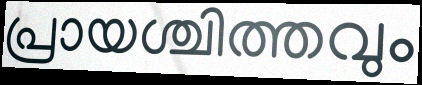
പ്രായശ്ചിത്തവും